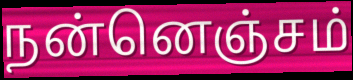
நன்னெஞ்சம்